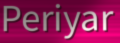
Periyar